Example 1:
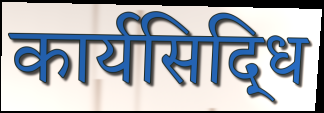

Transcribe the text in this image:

कार्यसिद्धि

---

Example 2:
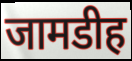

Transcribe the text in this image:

जामडीह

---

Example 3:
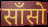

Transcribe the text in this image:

साँसो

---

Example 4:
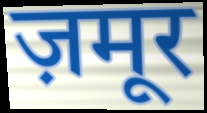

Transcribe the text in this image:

ज़मूर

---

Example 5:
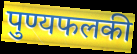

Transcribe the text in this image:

पुण्यफलकी